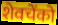
शेवचेंको